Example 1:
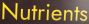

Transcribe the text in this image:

Nutrients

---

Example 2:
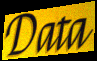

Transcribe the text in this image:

Data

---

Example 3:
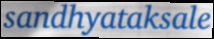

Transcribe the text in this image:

sandhyataksale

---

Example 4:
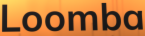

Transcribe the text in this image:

Loomba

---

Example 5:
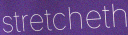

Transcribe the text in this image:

stretcheth